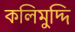
কলিমুদ্দি